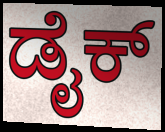
ಡೈಕ್